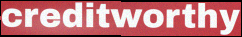
creditworthy